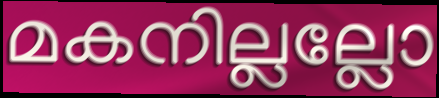
മകനില്ലല്ലോ